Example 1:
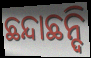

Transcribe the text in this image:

ଛନ୍ଦାଛନ୍ଦି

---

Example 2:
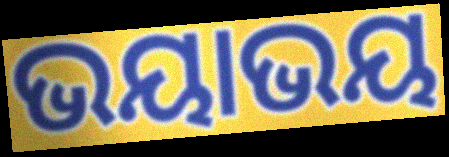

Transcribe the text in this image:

ଭୟାଭୟ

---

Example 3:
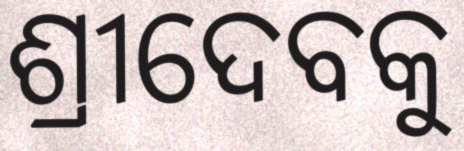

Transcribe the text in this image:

ଶ୍ରୀଦେବକୁ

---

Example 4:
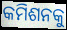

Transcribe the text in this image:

କମିଶନକୁ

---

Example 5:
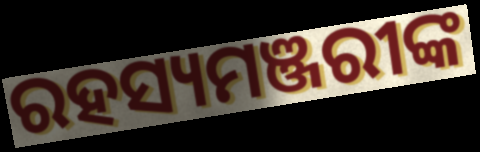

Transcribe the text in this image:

ରହସ୍ୟମଞ୍ଜରୀଙ୍କ